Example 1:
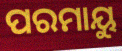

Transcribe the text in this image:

ପରମାୟୁ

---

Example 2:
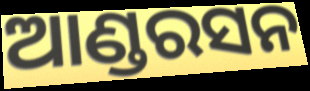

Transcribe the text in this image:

ଆଣ୍ଡରସନ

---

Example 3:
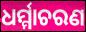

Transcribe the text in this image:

ଧର୍ମ୍ମାଚରଣ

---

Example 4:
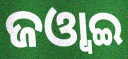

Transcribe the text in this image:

ଜଓ୍ବାଇ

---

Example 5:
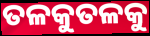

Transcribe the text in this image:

ତଳକୁତଳକୁ